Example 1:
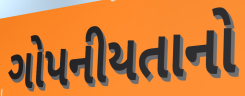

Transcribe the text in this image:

ગોપનીયતાનો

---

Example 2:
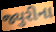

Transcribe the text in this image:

જ્યુરીના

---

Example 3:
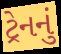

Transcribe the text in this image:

ટ્રેનનું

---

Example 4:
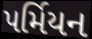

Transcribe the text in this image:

પર્મિયન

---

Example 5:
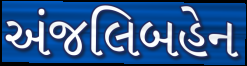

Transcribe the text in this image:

અંજલિબહેન